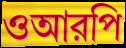
ওআরপি